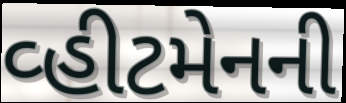
વ્હીટમેનની